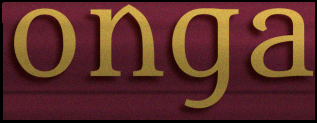
onga